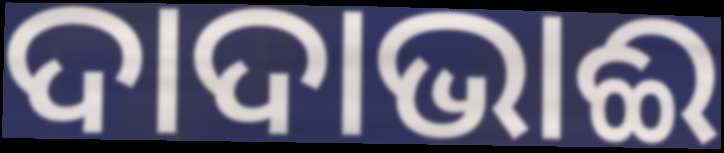
ଦାଦାଭାଈ